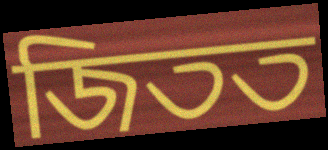
জিতত